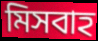
মিসবাহ